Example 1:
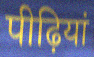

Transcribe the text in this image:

पीढ़ियां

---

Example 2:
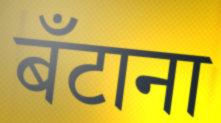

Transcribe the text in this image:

बँटाना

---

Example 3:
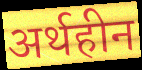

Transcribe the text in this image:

अर्थहीन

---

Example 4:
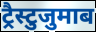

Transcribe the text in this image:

ट्रैस्टुजुमाब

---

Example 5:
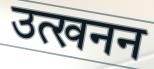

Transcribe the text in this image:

उत्खनन